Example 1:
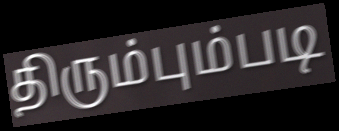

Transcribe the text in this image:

திரும்பும்படி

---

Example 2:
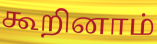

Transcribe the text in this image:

கூறினாம்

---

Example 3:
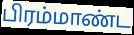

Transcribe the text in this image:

பிரம்மாண்ட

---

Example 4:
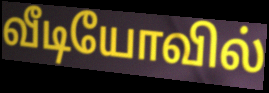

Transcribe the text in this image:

வீடியோவில்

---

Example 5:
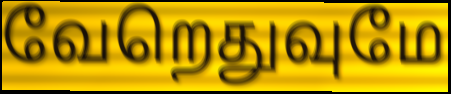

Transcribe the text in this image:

வேறெதுவுமே